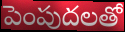
పెంపుదలతో